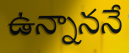
ఉన్నాననే